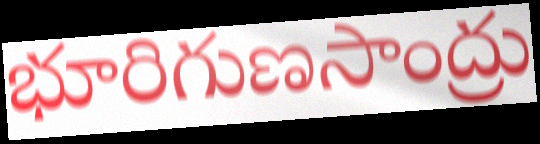
భూరిగుణసాంద్రు